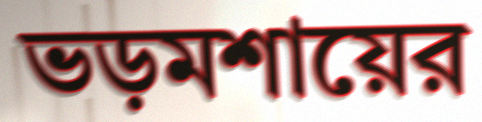
ভড়মশায়ের